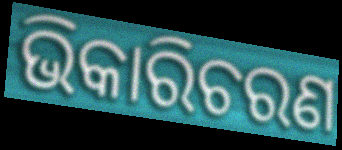
ଭିକାରିଚରଣ